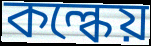
কল্কেয়